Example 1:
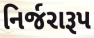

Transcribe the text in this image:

નિર્જરારૂપ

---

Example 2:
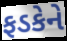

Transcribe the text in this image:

ફડકેને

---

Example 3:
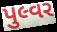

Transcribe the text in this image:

પુલ્વર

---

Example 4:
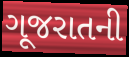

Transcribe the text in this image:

ગૂજરાતની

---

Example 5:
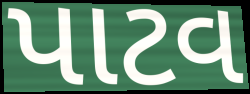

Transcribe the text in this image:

પાટવ